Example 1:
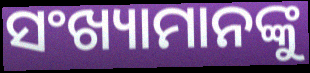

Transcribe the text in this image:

ସଂଖ୍ୟାମାନଙ୍କୁ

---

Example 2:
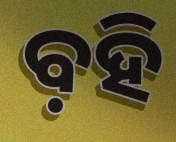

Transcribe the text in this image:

ବ଼ହି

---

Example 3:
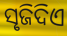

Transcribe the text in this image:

ସୃଜିଦିଏ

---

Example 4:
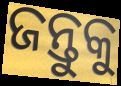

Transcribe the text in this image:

ଜନ୍ତୁକୁ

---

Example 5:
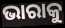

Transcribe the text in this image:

ଭାରାକୁ